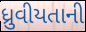
ધ્રુવીયતાની